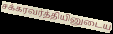
சக்கரவர்த்தியினுடைய